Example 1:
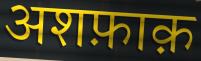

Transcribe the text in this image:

अशफ़ाक़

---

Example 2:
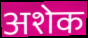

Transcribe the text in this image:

अशेक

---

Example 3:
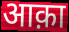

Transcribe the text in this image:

आक़ा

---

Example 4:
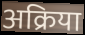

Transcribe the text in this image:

अक्रिया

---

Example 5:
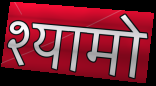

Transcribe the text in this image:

श्यामो